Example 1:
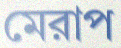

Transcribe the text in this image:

মেরাপ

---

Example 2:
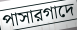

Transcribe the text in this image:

পাসারগাদে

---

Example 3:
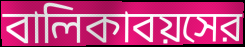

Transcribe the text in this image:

বালিকাবয়সের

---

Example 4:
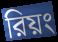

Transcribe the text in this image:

রিয়ং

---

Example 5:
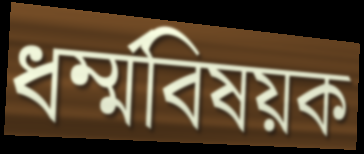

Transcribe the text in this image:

ধর্ম্মবিষয়ক